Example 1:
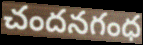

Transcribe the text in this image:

చందనగంధ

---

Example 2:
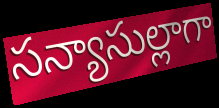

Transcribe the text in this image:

సన్యాసుల్లాగా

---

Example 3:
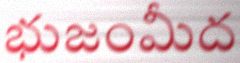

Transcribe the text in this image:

భుజంమీద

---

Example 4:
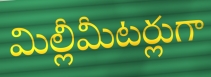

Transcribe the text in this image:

మిల్లీమీటర్లుగా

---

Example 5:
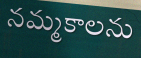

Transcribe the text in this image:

నమ్మకాలను